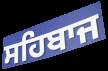
ਸਹਿਬਾਜ